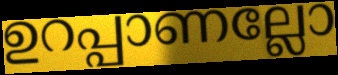
ഉറപ്പാണല്ലോ